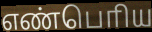
எண்பெரிய